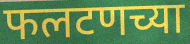
फलटणच्या